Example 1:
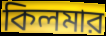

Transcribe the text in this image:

কিলমার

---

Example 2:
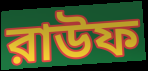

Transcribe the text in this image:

রাউফ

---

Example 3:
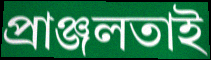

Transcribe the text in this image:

প্রাঞ্জলতাই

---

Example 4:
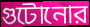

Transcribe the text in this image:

গুটোনোর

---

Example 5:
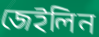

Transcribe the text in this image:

জেইলিন